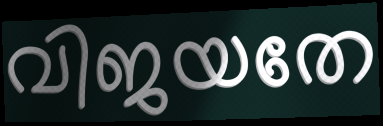
വിജയതേ